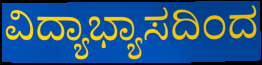
ವಿದ್ಯಾಭ್ಯಾಸದಿಂದ